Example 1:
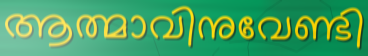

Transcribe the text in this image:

ആത്മാവിനുവേണ്ടി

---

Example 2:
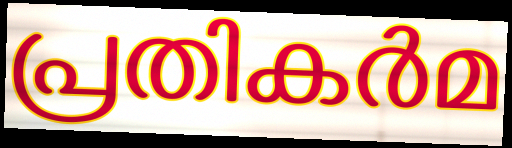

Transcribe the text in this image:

പ്രതികർമ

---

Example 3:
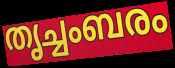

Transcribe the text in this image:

തൃച്ചംബരം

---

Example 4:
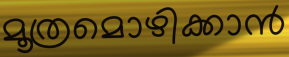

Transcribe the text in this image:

മൂത്രമൊഴിക്കാൻ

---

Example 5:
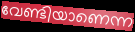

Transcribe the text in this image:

വേണ്ടിയാണെന്ന